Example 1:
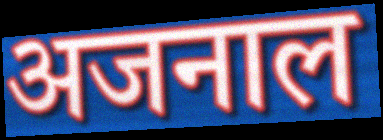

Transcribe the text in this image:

अजनाल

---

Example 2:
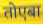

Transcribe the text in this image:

तोएबा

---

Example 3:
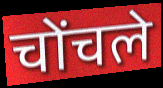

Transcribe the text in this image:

चोंचले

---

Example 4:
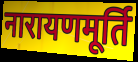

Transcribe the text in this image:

नारायणमूर्ति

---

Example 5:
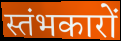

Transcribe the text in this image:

स्तंभकारों